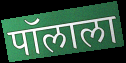
पॉलाला